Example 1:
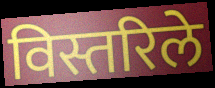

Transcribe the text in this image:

विस्तरिले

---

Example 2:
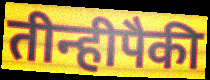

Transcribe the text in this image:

तीन्हीपैकी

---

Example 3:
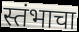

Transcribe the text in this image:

स्तंभाचा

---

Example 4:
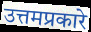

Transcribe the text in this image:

उत्तमप्रकारे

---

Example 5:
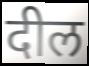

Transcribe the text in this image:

दील